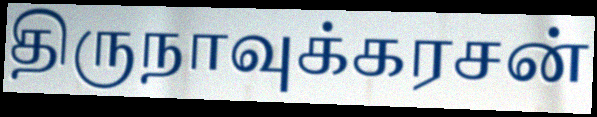
திருநாவுக்கரசன்